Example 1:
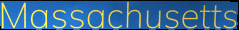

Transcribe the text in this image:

Massachusetts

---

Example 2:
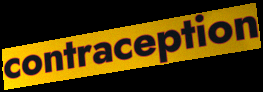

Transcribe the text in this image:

contraception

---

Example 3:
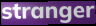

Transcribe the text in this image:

stranger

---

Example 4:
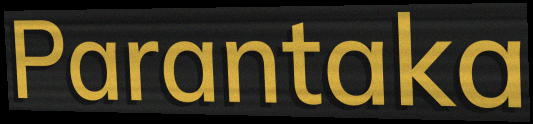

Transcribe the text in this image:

Parantaka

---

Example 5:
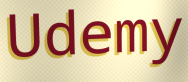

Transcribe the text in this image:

Udemy